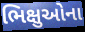
ભિક્ષુઓના